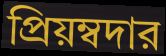
প্রিয়ম্বদার